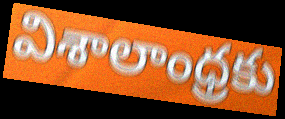
విశాలాంధ్రకు